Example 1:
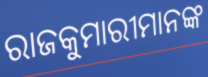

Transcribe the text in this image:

ରାଜକୁମାରୀମାନଙ୍କ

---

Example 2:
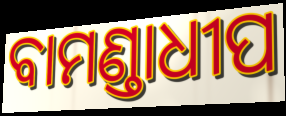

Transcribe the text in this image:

ବାମଣ୍ଡାଧୀପ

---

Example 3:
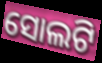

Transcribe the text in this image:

ସୋଲଟି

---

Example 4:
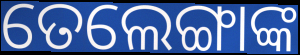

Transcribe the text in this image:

ତେଲେଙ୍ଗାଙ୍କ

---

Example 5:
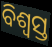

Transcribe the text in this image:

ବିଶ୍ଵସ୍ତ